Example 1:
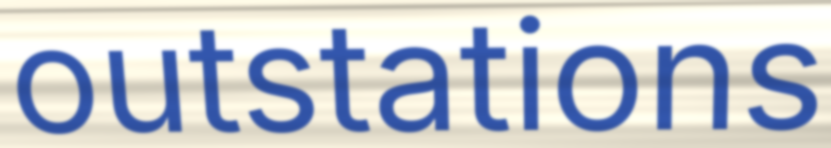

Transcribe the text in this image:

outstations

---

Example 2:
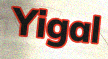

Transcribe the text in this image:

Yigal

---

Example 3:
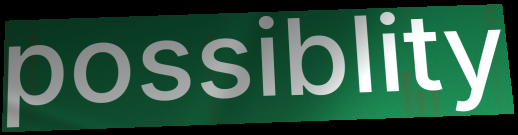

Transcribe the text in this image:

possiblity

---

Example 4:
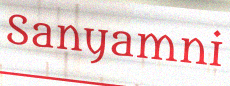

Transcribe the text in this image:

Sanyamni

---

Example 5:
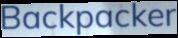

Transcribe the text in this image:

Backpacker